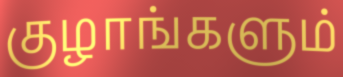
குழாங்களும்